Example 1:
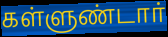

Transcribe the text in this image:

கள்ளுண்டார்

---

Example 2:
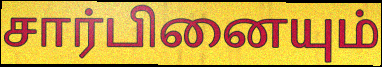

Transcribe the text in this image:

சார்பினையும்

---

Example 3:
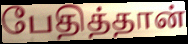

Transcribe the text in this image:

பேதித்தான்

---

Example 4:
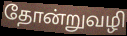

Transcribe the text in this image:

தோன்றுவழி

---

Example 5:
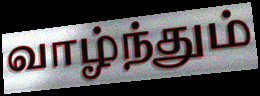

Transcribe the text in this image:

வாழ்ந்தும்